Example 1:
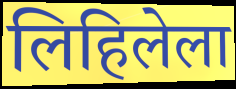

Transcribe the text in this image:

लिहिलेला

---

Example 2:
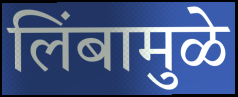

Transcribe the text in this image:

लिंबामुळे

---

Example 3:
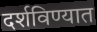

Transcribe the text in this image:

दर्शविण्यात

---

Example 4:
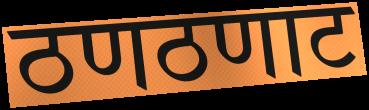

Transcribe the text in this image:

ठणठणाट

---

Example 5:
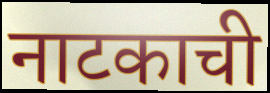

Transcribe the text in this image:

नाटकाची